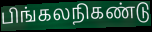
பிங்கலநிகண்டு